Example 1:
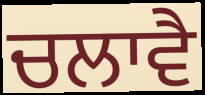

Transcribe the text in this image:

ਚਲਾਵੈ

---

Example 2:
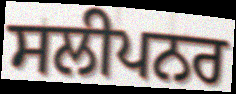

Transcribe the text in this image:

ਸਲੀਪਨਰ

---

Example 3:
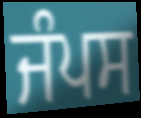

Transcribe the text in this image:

ਜੰਪਸ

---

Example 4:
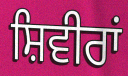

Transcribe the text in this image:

ਸ਼ਿਵੀਰਾਂ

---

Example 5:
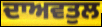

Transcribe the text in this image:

ਦਾਅਵਤੁਲ